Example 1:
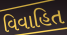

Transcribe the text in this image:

વિવાહિત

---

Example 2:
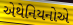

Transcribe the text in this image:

એથેનિયનોએ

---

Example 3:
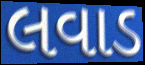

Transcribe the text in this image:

લવાડ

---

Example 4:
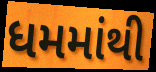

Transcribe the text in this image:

ધમમાંથી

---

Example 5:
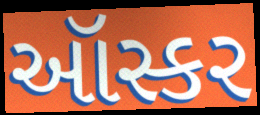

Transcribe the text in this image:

ઑસ્કર